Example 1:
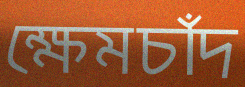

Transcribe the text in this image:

ক্ষেমচাঁদ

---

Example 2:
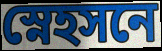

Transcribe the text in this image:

স্নেহসনে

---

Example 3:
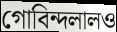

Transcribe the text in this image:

গোবিন্দলালও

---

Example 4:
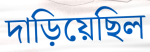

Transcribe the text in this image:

দাড়িয়েছিল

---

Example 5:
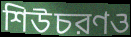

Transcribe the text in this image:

শিউচরণও